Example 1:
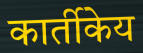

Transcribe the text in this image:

कार्तीकेय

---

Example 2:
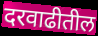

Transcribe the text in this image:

दरवाढीतील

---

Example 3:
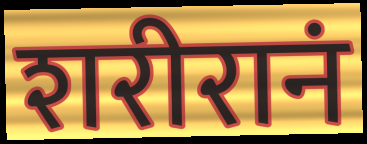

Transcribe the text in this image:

शरीरानं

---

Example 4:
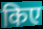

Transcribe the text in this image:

किए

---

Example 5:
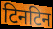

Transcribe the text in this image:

टिनटिन